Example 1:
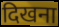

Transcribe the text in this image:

दिखना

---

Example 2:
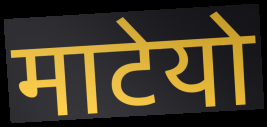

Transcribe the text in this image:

माटेयो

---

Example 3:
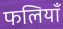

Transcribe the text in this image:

फलियाँ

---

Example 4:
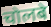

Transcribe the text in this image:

चोलबे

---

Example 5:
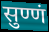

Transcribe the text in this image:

सुण्णं